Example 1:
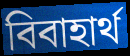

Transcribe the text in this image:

বিবাহার্থ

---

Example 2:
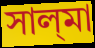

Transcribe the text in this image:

সাল্‌মা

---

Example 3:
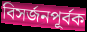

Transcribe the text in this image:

বিসর্জনপূর্বক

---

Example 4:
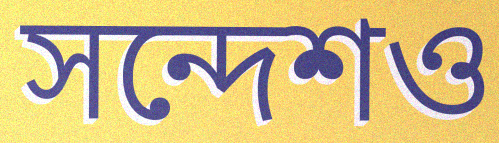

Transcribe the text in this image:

সন্দেশও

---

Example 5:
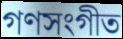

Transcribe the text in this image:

গণসংগীত